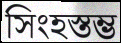
সিংহস্তম্ভ